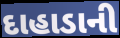
દાહાડાની